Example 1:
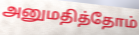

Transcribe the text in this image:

அனுமதித்தோம்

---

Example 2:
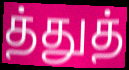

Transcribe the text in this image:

த்துத்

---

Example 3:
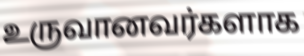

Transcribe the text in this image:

உருவானவர்களாக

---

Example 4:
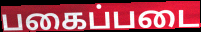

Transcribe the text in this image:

பகைப்படை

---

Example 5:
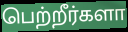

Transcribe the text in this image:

பெற்றீர்களா